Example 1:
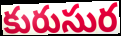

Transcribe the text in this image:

కురుసుర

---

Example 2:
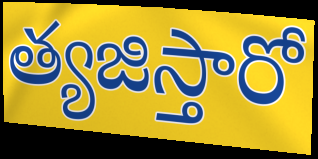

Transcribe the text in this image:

త్యజిస్తారో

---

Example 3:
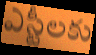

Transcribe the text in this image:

ఎస్టీలకు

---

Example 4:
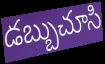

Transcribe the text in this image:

డబ్బుచూసి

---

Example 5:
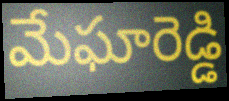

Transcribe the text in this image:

మేఘారెడ్డి